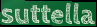
suttella